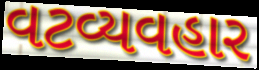
વટવ્યવહાર